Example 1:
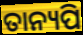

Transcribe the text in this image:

ତାନ୍ୟପି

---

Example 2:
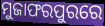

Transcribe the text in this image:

ମୁଜାଫରପୁରରେ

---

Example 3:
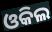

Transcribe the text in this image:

ଓକିଲ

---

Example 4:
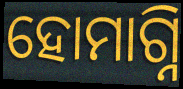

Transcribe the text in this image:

ହୋମାଗ୍ନି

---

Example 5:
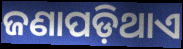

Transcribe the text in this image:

ଜଣାପଡ଼ିଥାଏ